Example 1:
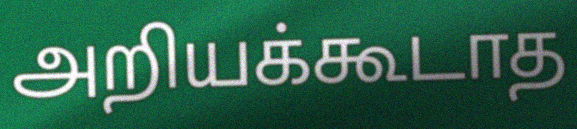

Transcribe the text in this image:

அறியக்கூடாத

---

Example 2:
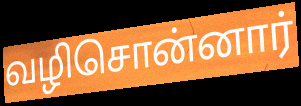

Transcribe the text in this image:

வழிசொன்னார்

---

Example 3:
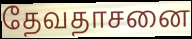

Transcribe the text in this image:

தேவதாசனை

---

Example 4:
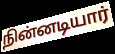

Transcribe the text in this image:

நின்னடியார்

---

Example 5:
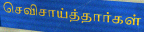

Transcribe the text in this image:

செவிசாய்த்தார்கள்